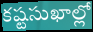
కష్టసుఖాల్లో